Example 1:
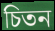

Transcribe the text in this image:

চিতন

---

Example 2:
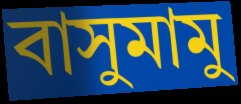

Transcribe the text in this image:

বাসুমামু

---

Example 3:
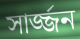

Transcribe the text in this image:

সার্জ্জন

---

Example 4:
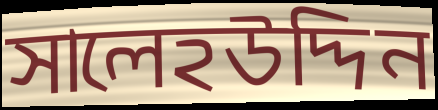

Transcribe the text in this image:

সালেহউদ্দিন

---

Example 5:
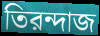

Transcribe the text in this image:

তিরন্দাজ